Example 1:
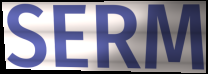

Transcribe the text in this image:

SERM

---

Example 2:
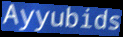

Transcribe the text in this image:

Ayyubids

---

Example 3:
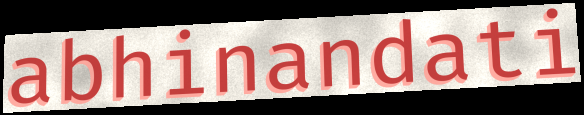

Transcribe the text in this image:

abhinandati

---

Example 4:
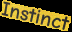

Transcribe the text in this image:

Instinct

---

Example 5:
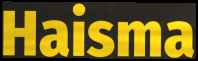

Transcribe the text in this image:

Haisma